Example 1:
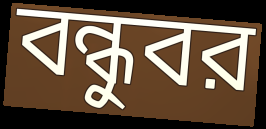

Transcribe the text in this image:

বন্ধুবর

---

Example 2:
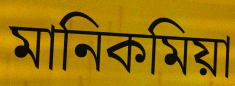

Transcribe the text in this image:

মানিকমিয়া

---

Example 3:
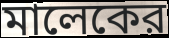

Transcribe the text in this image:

মালেকের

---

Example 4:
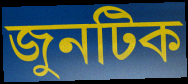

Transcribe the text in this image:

জুনটিক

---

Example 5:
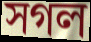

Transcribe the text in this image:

সগল